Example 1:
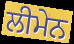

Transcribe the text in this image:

ਲੀਮੇਨ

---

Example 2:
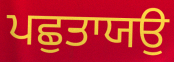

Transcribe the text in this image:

ਪਛੁਤਾਯਉ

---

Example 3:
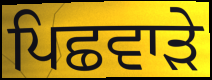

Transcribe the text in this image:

ਪਿਛਵਾੜੇ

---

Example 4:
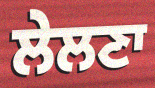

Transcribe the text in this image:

ਲੇਲਣਾ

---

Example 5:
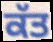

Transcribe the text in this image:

ਕੱਤ